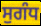
ਸੁਗੰਧ